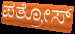
ಪತ್ರೋಸ್